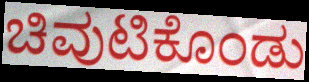
ಚಿವುಟಿಕೊಂಡು